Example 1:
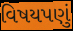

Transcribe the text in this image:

વિષયપણું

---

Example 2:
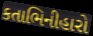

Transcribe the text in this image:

કતાભિનીહારો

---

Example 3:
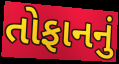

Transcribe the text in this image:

તોફાનનું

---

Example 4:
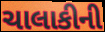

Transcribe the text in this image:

ચાલાકીની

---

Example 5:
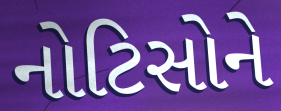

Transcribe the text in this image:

નોટિસોને